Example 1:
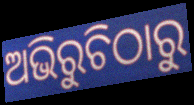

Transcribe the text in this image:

ଅଭିରୁଚିଠାରୁ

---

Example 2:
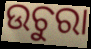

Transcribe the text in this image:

ଉଚୁରା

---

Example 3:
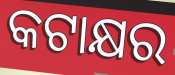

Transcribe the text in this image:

କଟାକ୍ଷର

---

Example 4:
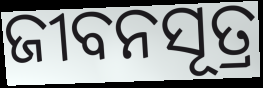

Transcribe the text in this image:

ଜୀବନସୂତ୍ର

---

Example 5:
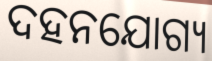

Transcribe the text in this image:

ଦହନଯୋଗ୍ୟ